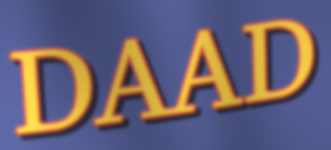
DAAD